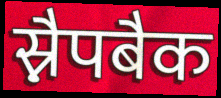
स्नैपबैक